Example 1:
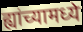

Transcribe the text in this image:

ह्यांच्यामध्ये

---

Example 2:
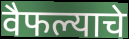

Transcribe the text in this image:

वैफल्याचे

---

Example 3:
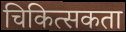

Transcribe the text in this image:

चिकित्सकता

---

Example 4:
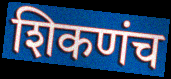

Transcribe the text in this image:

शिकणंच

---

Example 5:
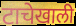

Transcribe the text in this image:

टाचेखाली